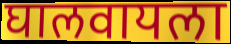
घालवायला